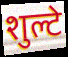
शुल्टे